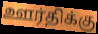
ஊர்திக்கு